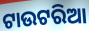
ଟାଉଟରିଆ